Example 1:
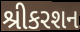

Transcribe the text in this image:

શ્રીકરશન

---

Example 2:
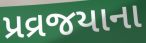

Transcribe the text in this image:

પ્રવ્રજયાના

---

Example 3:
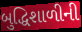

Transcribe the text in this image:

બુદ્ધિશાળીની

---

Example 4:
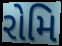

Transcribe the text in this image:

રોમિ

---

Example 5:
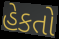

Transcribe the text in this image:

હેકતો